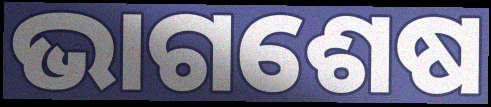
ଭାଗଶେଷ